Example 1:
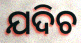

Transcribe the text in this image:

ଯଦିଚ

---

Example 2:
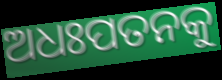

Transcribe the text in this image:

ଅଧଃପତନକୁ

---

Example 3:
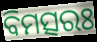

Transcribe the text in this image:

ବିମତ୍ସରଃ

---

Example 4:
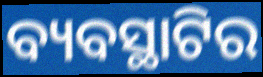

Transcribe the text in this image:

ବ୍ୟବସ୍ଥାଟିର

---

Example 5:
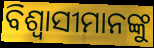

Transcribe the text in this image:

ବିଶ୍ୱାସୀମାନଙ୍କୁ